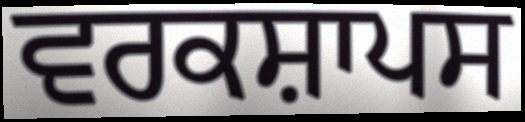
ਵਰਕਸ਼ਾਪਸ